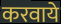
करवाये